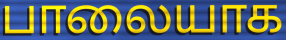
பாலையாக